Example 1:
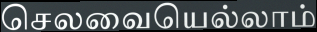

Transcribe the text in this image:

செலவையெல்லாம்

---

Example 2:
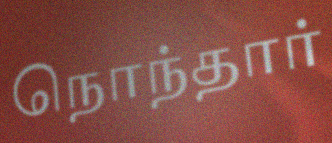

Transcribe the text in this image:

நொந்தார்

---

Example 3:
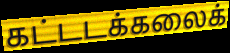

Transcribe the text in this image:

கட்டடக்கலைக்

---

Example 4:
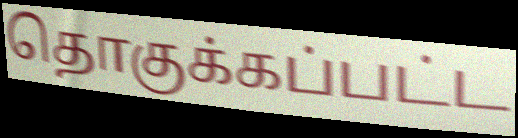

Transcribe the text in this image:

தொகுக்கப்பட்ட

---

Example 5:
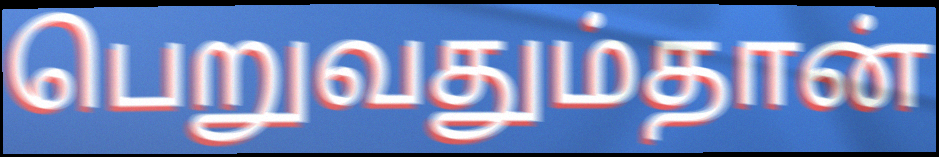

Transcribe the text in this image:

பெறுவதும்தான்